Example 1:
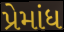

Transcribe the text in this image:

પ્રેમાંધ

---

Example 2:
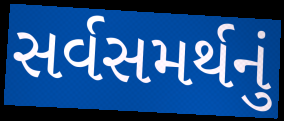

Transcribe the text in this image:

સર્વસમર્થનું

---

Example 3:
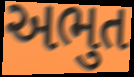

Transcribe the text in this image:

અભુત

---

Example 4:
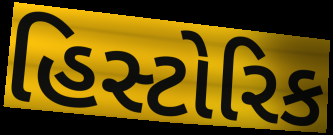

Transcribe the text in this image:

હિસ્ટોરિક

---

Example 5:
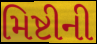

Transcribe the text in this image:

મિષ્ટીની